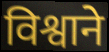
विश्वाने